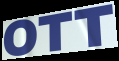
OTT